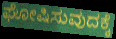
ಘೋಷಿಸುವುದಕ್ಕೆ